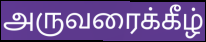
அருவரைக்கீழ்